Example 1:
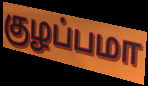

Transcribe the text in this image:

குழப்பமா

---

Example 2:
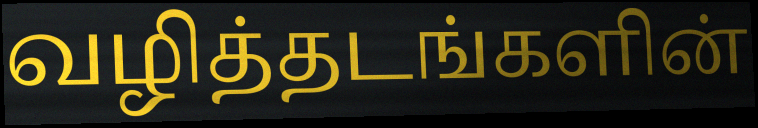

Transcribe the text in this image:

வழித்தடங்களின்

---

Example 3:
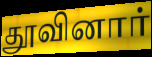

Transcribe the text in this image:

தூவினார்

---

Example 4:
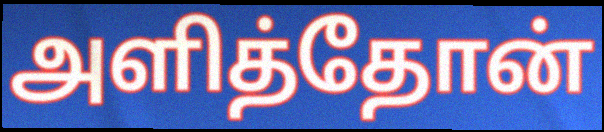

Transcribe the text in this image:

அளித்தோன்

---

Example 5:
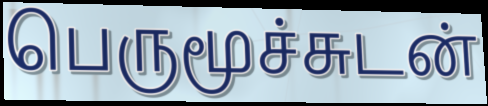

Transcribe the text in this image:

பெருமூச்சுடன்